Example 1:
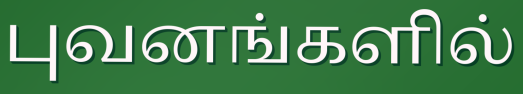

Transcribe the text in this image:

புவனங்களில்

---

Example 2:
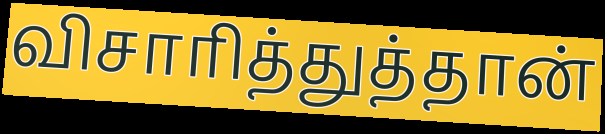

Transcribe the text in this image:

விசாரித்துத்தான்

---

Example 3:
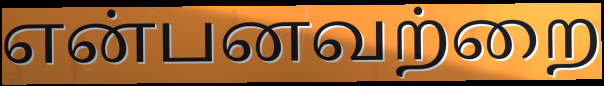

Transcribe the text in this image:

என்பனவற்றை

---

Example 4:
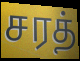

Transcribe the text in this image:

சரத்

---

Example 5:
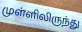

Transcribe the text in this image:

முள்ளிலிருந்து